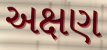
અક્ષણ